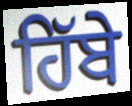
ਹਿੱਬੇ